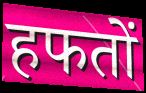
हफतों